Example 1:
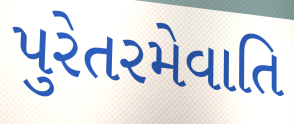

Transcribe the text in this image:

પુરેતરમેવાતિ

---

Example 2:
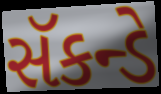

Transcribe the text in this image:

સૅકન્ડે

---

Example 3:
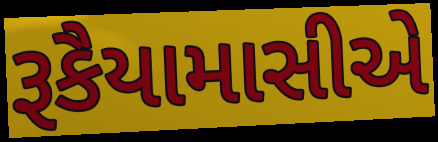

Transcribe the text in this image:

રૂકૈયામાસીએ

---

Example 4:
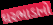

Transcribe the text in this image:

ઘરભાડાનો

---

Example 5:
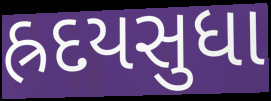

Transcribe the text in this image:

હ્રદયસુધા